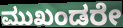
ಮುಖಂಡರೇ